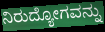
ನಿರುದ್ಯೋಗವನ್ನು